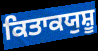
ਕਿਤਾਕਯੁਸ਼ੂ